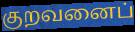
குறவனைப்